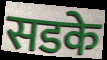
सडके